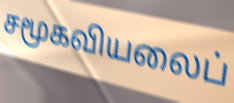
சமூகவியலைப்